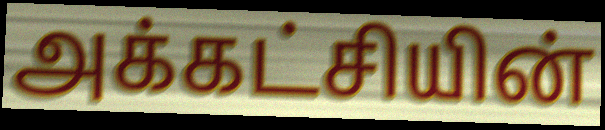
அக்கட்சியின்